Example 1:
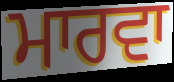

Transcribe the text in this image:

ਮਾਰਵਾ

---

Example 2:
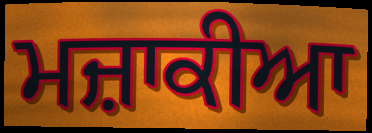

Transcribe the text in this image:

ਮਜ਼ਾਕੀਆ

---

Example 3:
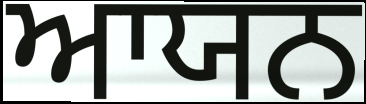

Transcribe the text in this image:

ਆਯਨ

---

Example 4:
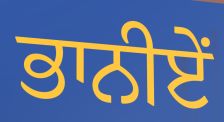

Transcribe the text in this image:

ਭਾਨੀਏਂ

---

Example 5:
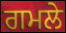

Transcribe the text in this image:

ਗਮਲੇ